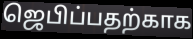
ஜெபிப்பதற்காக